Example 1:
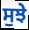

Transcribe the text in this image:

ਸੁਝੇ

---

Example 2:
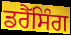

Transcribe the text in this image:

ਡਰੈੱਸਿੰਗ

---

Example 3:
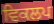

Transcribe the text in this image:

ਵਿਕਲਪ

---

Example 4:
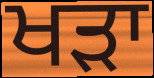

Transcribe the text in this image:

ਖੜਾ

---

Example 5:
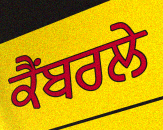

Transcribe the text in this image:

ਕੈਂਬਰਲੇ